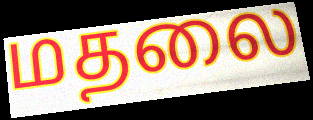
மதலை